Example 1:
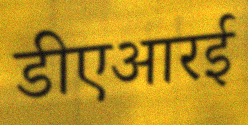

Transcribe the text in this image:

डीएआरई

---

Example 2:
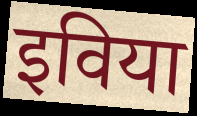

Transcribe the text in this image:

इविया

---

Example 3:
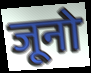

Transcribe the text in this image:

जूनो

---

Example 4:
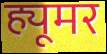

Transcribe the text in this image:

ह्यूमर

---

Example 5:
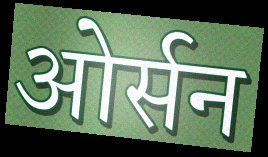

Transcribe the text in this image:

ओर्सन